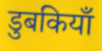
डुबकियाँ